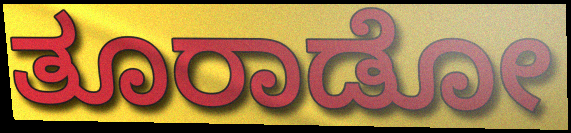
ತೂರಾಡೋ